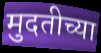
मुदतीच्या